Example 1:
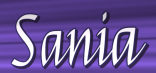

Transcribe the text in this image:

Sania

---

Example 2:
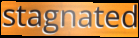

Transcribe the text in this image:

stagnated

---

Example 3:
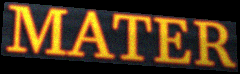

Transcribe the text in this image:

MATER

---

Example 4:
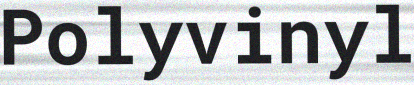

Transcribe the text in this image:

Polyvinyl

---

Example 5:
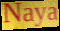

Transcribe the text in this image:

Naya